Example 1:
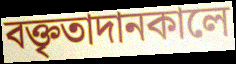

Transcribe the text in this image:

বক্তৃতাদানকালে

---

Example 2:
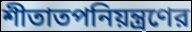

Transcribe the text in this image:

শীতাতপনিয়ন্ত্রণের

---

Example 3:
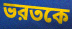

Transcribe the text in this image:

ভরতকে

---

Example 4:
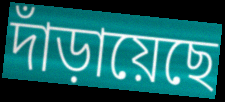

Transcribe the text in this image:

দাঁড়ায়েছে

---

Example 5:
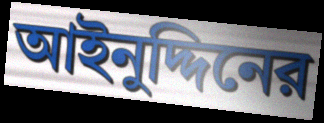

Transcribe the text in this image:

আইনুদ্দিনের